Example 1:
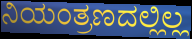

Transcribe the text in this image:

ನಿಯಂತ್ರಣದಲ್ಲಿಲ್ಲ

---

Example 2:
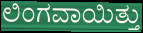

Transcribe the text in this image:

ಲಿಂಗವಾಯಿತ್ತು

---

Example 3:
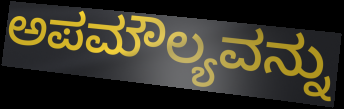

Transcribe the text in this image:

ಅಪಮೌಲ್ಯವನ್ನು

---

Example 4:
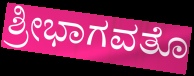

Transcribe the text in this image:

ಶ್ರೀಭಾಗವತೊ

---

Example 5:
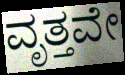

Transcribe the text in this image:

ವೃತ್ತವೇ